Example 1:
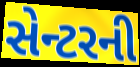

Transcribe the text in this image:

સેન્ટરની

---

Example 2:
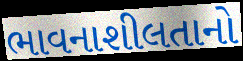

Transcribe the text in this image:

ભાવનાશીલતાનો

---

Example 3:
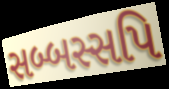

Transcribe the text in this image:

સબ્બસ્સપિ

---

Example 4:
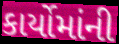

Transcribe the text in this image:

કાર્યોમાંની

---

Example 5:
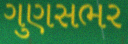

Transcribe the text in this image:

ગુણસભર